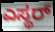
ಎಸ್ಥರ್